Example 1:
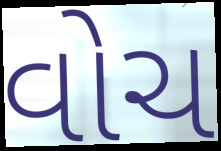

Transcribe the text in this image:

વોચ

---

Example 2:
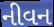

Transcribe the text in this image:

નીવન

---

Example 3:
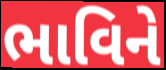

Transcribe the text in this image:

ભાવિને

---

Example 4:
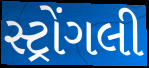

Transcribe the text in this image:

સ્ટ્રોંગલી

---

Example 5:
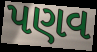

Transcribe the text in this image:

પણવ